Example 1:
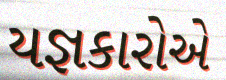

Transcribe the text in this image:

યજ્ઞકારોએ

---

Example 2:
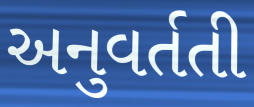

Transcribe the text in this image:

અનુવર્તતી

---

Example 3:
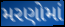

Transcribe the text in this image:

મરણોમાં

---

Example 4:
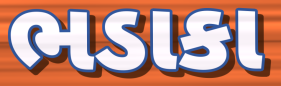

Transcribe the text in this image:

ભડાકા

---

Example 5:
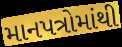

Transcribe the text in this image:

માનપત્રોમાંથી